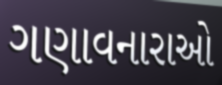
ગણાવનારાઓ